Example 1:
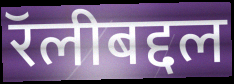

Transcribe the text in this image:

रॅलीबद्दल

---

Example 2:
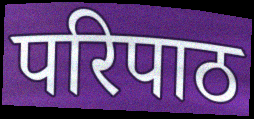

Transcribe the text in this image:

परिपाठ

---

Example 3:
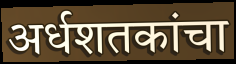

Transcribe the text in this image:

अर्धशतकांचा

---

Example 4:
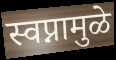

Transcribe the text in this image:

स्वप्नामुळे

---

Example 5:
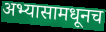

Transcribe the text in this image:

अभ्यासामधूनच